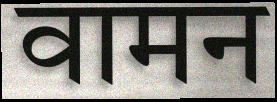
वामन